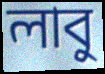
লাবু